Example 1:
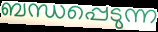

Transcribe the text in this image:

ബന്ധപ്പെടുന്ന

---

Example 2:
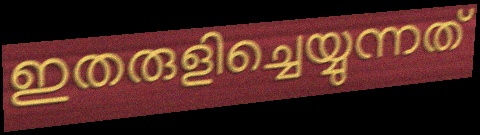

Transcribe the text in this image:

ഇതരുളിച്ചെയ്യുന്നത്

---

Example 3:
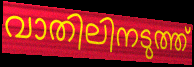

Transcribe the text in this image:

വാതിലിനടുത്ത്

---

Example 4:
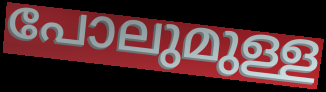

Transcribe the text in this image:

പോലുമുള്ള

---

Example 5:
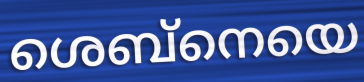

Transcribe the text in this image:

ശെബ്നെയെ